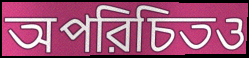
অপরিচিতও